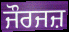
ਜੌਰਜਜ਼